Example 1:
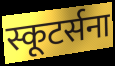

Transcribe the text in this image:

स्कूटर्सना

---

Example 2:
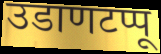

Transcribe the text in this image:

उडाणटप्पू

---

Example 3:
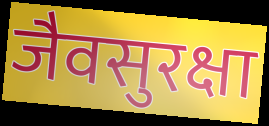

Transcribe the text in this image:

जैवसुरक्षा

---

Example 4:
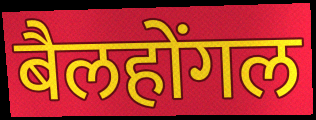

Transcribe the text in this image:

बैलहोंगल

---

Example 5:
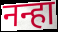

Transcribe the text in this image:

नन्हा